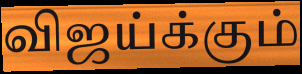
விஜய்க்கும்